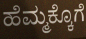
ಹೆಮ್ಮಕ್ಕೊಗೆ